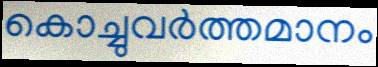
കൊച്ചുവർത്തമാനം